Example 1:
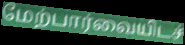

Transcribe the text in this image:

மேற்பார்வையிடச்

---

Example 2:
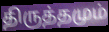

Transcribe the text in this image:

திருத்தமும்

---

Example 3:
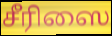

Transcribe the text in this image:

சீரிஸை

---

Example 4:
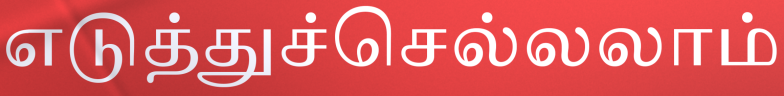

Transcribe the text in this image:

எடுத்துச்செல்லலாம்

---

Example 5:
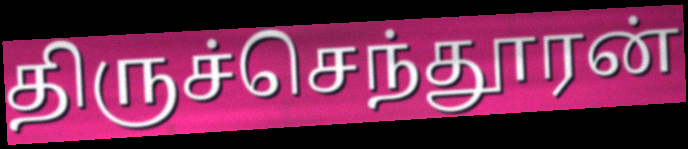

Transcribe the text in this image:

திருச்செந்தூரன்